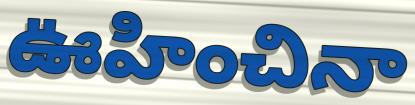
ఊహించినా